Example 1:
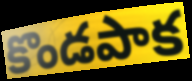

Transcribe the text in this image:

కొండపాక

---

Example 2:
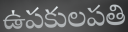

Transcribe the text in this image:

ఉపకులపతి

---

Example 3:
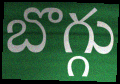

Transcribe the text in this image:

బొగ్గు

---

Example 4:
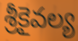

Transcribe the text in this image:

శ్రీకైవల్య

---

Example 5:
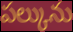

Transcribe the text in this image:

పల్కును